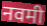
नवमी